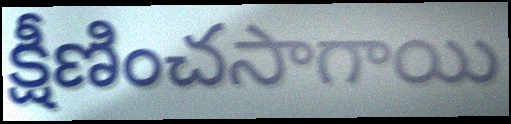
క్షీణించసాగాయి